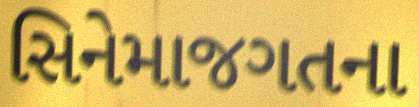
સિનેમાજગતના